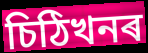
চিঠিখনৰ